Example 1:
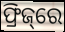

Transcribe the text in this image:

ଫ୍ରିଜ୍‌ରେ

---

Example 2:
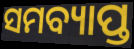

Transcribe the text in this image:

ସମବ୍ୟାପ୍ତ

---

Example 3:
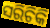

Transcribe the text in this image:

ସରିଚିକି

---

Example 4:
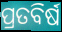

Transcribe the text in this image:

ପ୍ରତବିର୍ଷ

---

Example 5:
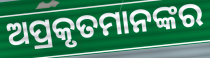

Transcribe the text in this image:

ଅପ୍ରକୃତମାନଙ୍କର